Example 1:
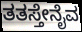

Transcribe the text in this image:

ತತಸ್ತೇನೈವ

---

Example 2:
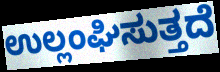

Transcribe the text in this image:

ಉಲ್ಲಂಘಿಸುತ್ತದೆ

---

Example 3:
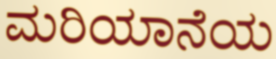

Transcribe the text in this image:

ಮರಿಯಾನೆಯ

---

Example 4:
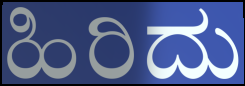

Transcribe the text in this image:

ಹಿರಿದು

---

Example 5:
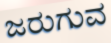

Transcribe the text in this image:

ಜರುಗುವ